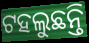
ଟହଲୁଛନ୍ତି